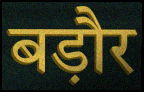
बड़ौर